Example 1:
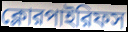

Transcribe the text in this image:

ক্লোরপাইরিফস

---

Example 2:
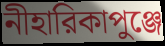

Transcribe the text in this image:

নীহারিকাপুঞ্জে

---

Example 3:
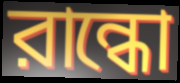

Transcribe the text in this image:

রান্ধো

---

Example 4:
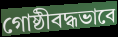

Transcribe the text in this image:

গোষ্ঠীবদ্ধভাবে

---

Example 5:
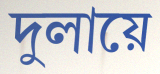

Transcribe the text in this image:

দুলায়ে